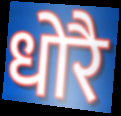
धोरै